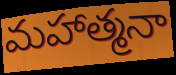
మహాత్మనా